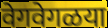
वेगवेगळया